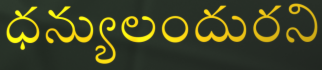
ధన్యులందురని